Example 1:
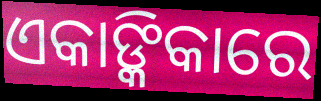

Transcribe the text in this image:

ଏକାଙ୍କିକାରେ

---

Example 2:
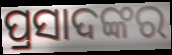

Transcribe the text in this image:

ପ୍ରସାଦଙ୍କର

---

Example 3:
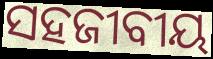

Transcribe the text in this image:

ସହଜୀବୀୟ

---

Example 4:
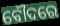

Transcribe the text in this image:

ବୌଦରେ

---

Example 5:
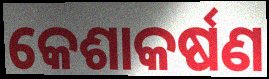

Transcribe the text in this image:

କେଶାକର୍ଷଣ